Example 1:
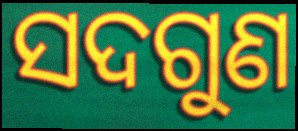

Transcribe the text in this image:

ସଦଗୁଣ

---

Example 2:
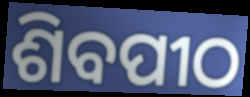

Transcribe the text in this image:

ଶିବପୀଠ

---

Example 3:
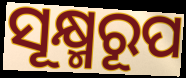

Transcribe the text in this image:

ସୂକ୍ଷ୍ମରୂପ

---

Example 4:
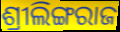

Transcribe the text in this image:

ଶ୍ରୀଲିଙ୍ଗରାଜ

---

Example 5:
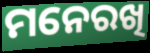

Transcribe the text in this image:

ମନେରଖି